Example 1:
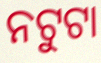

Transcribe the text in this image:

ନଟୁଟା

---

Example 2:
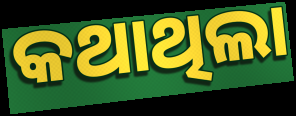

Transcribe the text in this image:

କଥାଥିଲା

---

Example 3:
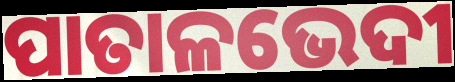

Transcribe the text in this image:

ପାତାଳଭେଦୀ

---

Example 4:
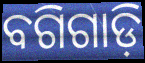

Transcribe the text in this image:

ବଗିଗାଡ଼ି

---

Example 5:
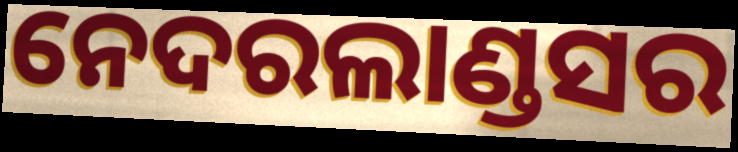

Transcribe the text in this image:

ନେଦରଲାଣ୍ଡସର